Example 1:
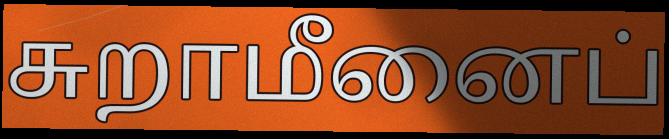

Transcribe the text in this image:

சுறாமீனைப்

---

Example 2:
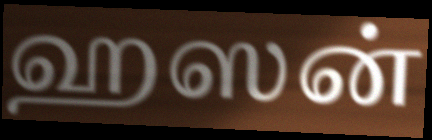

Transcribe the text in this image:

ஹஸன்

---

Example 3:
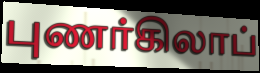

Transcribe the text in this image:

புணர்கிலாப்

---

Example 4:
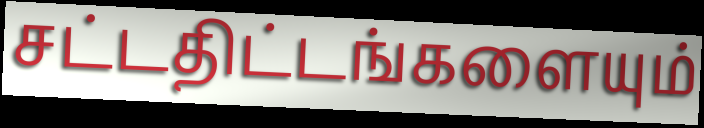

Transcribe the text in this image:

சட்டதிட்டங்களையும்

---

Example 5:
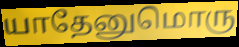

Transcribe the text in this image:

யாதேனுமொரு